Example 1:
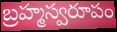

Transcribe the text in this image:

బ్రహ్మస్వరూపం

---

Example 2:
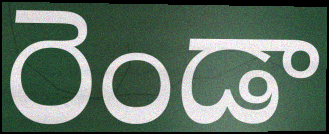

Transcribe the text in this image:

రెండా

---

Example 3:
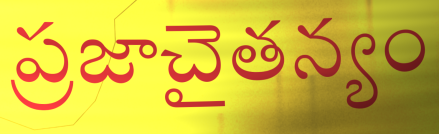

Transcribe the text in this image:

ప్రజాచైతన్యం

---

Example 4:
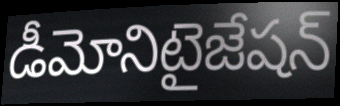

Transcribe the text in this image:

డీమోనిటైజేషన్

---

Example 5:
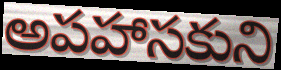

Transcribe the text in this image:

అపహాసకుని